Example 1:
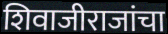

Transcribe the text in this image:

शिवाजीराजांचा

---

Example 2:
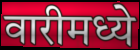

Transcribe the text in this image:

वारीमध्ये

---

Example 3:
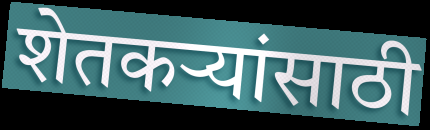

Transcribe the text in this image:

शेतकर्‍यांसाठी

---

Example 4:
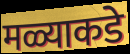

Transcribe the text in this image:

मळ्याकडे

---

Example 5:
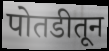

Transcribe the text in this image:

पोतडीतून